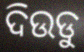
ଦିଉଡୁ